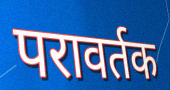
परावर्तक